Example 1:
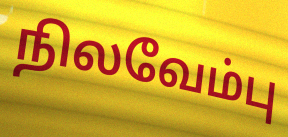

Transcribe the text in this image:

நிலவேம்பு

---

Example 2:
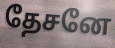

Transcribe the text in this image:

தேசனே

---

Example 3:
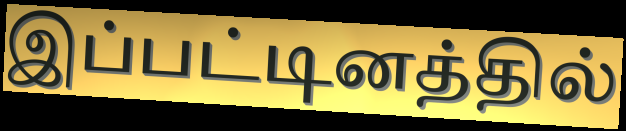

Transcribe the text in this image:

இப்பட்டினத்தில்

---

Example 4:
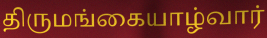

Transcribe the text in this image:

திருமங்கையாழ்வார்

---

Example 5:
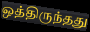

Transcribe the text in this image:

ஒத்திருந்தது